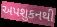
અપશુકનથી